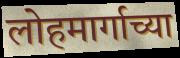
लोहमार्गाच्या